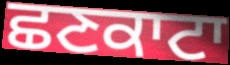
ਛਣਕਾਟਾ